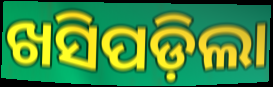
ଖସିପଡ଼ିଲା